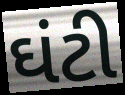
ઘંટી